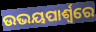
ଉଭୟପାର୍ଶ୍ବରେ